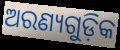
ଅରଣ୍ୟଗୁଡ଼ିକ